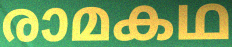
രാമകഥ